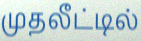
முதலீட்டில்